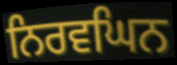
ਨਿਰਵਘਿਨ